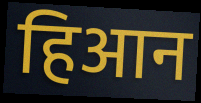
हिआन